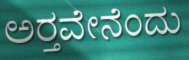
ಅರ‍್ತವೇನೆಂದು